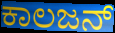
ಕಾಲಜನ್